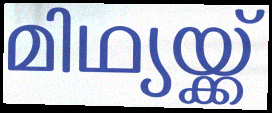
മിഥ്യയ്ക്ക്